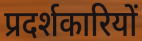
प्रदर्शकारियों